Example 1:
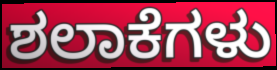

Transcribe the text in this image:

ಶಲಾಕೆಗಳು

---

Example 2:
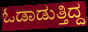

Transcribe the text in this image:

ಓಡಾಡುತ್ತಿದ್ದ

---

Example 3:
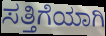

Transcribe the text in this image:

ಸತ್ತಿಗೆಯಾಗಿ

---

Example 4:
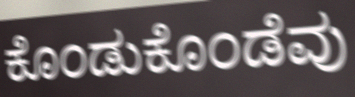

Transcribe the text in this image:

ಕೊಂಡುಕೊಂಡೆವು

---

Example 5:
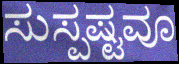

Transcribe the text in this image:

ಸುಸ್ಪಷ್ಟವೂ